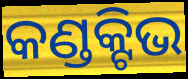
କଣ୍ଡକ୍ଟିଭ